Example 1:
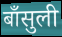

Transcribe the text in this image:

बाँसुली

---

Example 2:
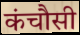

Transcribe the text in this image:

कंचौसी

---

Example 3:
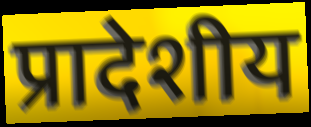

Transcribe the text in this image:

प्रादेशीय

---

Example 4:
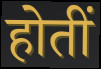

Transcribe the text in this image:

होतीं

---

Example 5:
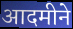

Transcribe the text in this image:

आदमीने